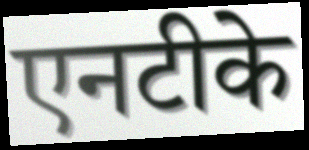
एनटीके